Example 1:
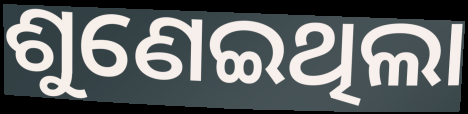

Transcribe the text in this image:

ଶୁଣେଇଥିଲା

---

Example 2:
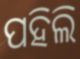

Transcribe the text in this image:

ପହିଲି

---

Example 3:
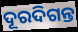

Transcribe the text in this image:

ଦୂରଦିଗନ୍ତ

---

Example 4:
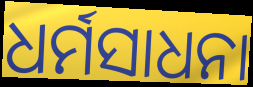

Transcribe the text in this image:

ଧର୍ମସାଧନା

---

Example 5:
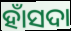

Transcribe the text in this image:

ହାଁସଦା